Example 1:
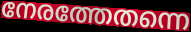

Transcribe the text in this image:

നേരത്തേതന്നെ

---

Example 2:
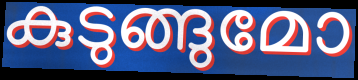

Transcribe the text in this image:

കുടുങ്ങുമോ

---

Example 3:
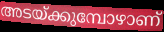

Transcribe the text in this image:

അടയ്ക്കുമ്പോഴാണ്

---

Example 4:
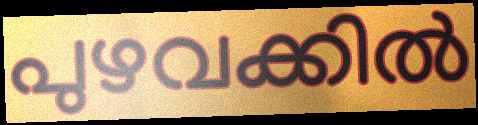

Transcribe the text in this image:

പുഴവക്കിൽ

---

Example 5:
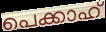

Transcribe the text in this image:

പെക്കാഹ്